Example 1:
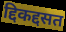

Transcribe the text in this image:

द्दिकद्दसत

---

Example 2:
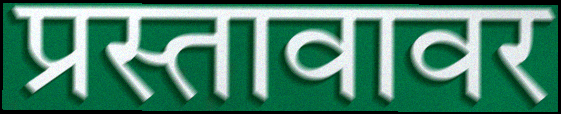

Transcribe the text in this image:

प्रस्तावावर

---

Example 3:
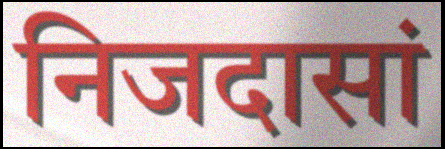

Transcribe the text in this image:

निजदासां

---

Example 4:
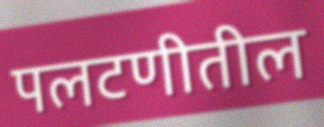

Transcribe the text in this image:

पलटणीतील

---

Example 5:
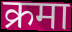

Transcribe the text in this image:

क्रमा